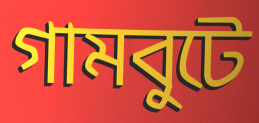
গামবুটে